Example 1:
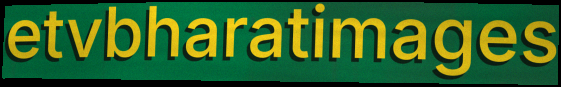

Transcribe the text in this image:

etvbharatimages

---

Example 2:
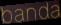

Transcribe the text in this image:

banda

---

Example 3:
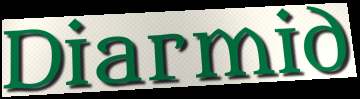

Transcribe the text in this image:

Diarmid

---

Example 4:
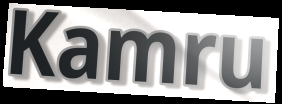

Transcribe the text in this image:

Kamru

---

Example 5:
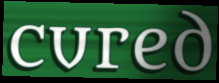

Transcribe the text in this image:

cured